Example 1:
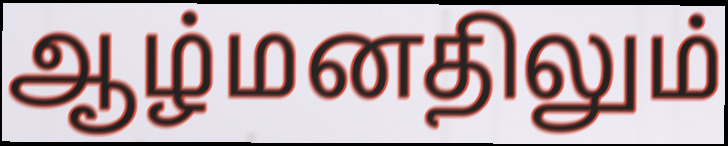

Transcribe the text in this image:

ஆழ்மனதிலும்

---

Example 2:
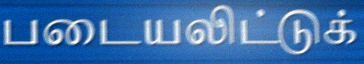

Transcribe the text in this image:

படையலிட்டுக்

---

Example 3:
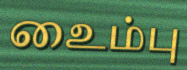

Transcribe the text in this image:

உைம்பு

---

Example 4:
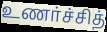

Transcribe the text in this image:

உணர்ச்சித்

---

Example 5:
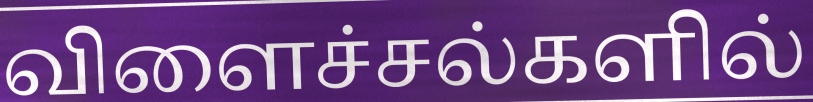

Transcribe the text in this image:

விளைச்சல்களில்